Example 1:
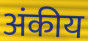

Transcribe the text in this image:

अंकीय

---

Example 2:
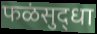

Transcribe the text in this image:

फळंसुद्धा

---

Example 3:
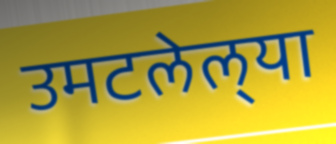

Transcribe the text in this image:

उमटलेल्या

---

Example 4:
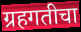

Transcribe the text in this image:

ग्रहगतीचा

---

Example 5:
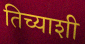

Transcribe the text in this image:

तिच्याशी